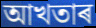
আখতাৰ